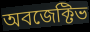
অবজেক্টিভ